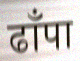
ढाँपा